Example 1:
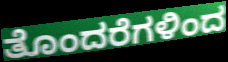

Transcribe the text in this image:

ತೊಂದರೆಗಳಿಂದ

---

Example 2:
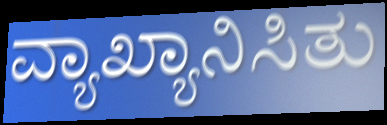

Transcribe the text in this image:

ವ್ಯಾಖ್ಯಾನಿಸಿತು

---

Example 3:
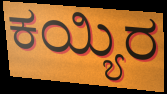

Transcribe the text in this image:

ಕಯ್ಯಿರ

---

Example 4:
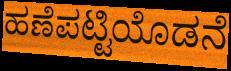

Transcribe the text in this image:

ಹಣೆಪಟ್ಟಿಯೊಡನೆ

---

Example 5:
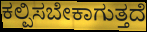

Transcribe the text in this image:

ಕಲ್ಪಿಸಬೇಕಾಗುತ್ತದೆ